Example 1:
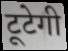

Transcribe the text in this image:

टूटेगी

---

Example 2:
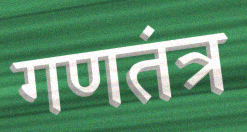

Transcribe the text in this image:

गणतंत्र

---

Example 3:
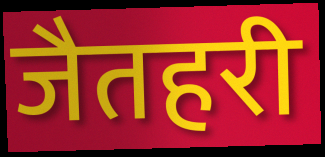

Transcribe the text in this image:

जैतहरी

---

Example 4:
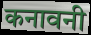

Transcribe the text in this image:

कनावनी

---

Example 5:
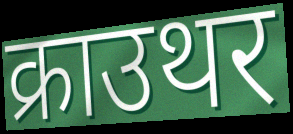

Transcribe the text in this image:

क्राउथर